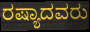
ರಷ್ಯಾದವರು